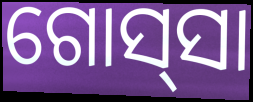
ଗୋସ୍‌ସା